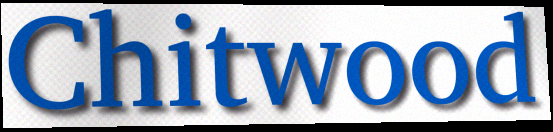
Chitwood